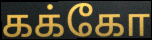
கக்கோ